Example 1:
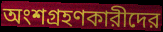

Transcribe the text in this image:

অংশগ্রহণকারীদের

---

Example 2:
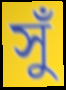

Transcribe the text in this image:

সুঁ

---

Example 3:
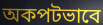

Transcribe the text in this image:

অকপটভাবে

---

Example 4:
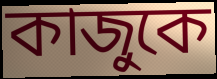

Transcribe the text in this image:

কাজুকে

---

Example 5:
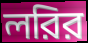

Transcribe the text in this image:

লরির